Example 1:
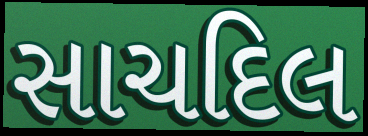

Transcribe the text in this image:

સાચદિલ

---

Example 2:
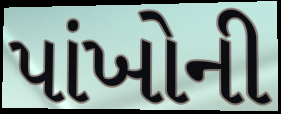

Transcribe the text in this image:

પાંખોની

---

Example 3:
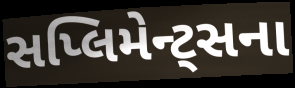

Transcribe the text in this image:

સપ્લિમેન્ટ્સના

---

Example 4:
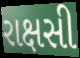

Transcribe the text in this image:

રાક્ષસી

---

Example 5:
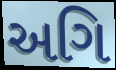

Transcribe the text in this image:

અગિ